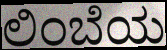
ಲಿಂಬೆಯ